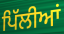
ਪਿੱਲੀਆਂ